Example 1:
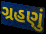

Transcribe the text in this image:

ગ્રહણું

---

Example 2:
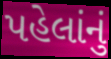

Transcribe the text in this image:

પહેલાંનું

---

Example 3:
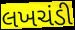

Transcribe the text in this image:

લખચંડી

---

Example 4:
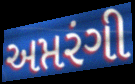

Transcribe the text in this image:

અપ્તરંગી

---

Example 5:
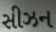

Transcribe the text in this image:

સીઝન